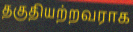
தகுதியற்றவராக